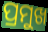
ପ୍ରମୁଖ